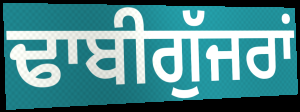
ਢਾਬੀਗੁੱਜਰਾਂ